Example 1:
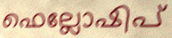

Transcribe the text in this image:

ഫെല്ലോഷിപ്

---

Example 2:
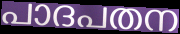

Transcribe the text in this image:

പാദപതന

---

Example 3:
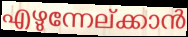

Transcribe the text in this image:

എഴുന്നേല്ക്കാൻ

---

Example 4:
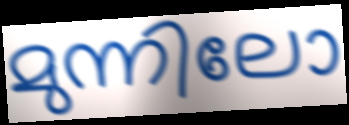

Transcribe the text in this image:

മുന്നിലോ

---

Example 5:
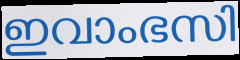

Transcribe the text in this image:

ഇവാംഭസി